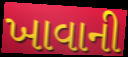
ખાવાની